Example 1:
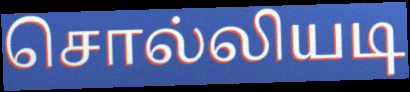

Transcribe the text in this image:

சொல்லியடி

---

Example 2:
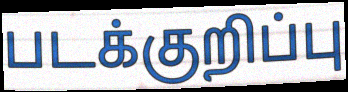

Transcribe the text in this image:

படக்குறிப்பு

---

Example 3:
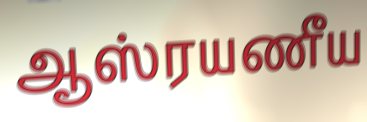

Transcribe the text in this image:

ஆஸ்ரயணீய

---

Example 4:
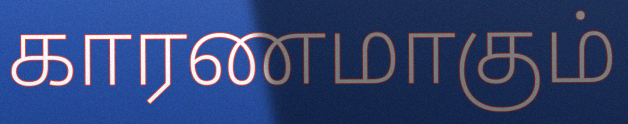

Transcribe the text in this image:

காரணமாகும்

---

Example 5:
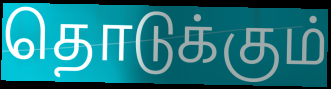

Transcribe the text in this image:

தொடுக்கும்